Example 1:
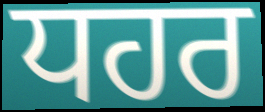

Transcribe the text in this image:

ਧਹਰ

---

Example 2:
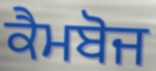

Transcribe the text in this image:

ਕੈਮਬੋਜ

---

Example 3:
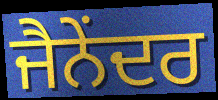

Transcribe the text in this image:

ਜੈਨੇਂਦਰ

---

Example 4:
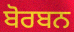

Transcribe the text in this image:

ਬੋਰਬਨ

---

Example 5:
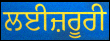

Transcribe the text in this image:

ਲਈਜ਼ਰੂਰੀ